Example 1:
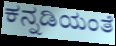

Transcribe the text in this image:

ಕನ್ನಡಿಯಂತೆ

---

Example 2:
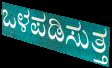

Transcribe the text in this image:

ಒಳಪಡಿಸುತ್ತ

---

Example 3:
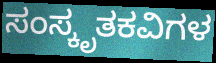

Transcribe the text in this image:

ಸಂಸ್ಕೃತಕವಿಗಳ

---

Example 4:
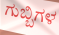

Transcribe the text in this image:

ಗುಬ್ಬಿಗಳ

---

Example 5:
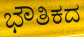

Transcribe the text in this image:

ಭೌತಿಕದ